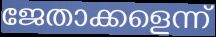
ജേതാക്കളെന്ന്